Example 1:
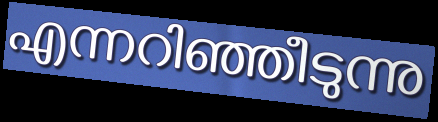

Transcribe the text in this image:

എന്നറിഞ്ഞീടുന്നു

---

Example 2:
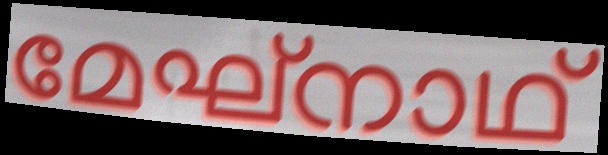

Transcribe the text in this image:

മേഘ്നാഥ്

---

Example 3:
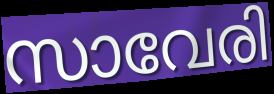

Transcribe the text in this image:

സാവേരി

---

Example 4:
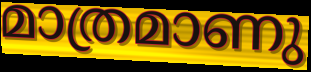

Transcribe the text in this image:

മാത്രമാണു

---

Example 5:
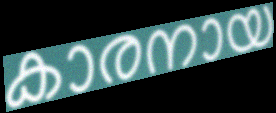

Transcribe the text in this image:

കാരനായ